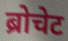
ब्रोचेट